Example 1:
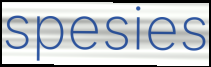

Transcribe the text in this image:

spesies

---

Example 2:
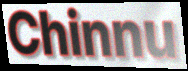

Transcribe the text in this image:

Chinnu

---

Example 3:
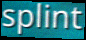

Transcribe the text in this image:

splint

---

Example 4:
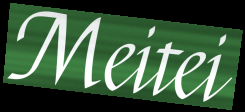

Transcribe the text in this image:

Meitei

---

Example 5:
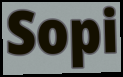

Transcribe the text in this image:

Sopi